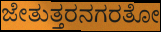
ಜೇತುತ್ತರನಗರತೋ